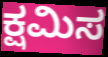
ಕ್ಷಮಿಸ